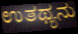
ಉತಥ್ಯನು